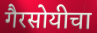
गैरसोयीचा